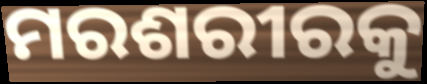
ମରଶରୀରକୁ